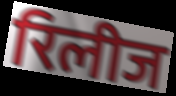
रिलीज